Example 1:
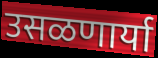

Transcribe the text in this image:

उसळणार्या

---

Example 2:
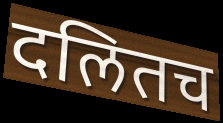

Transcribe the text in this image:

दलितच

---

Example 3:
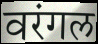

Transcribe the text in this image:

वरंगल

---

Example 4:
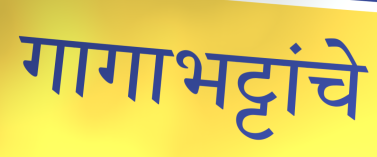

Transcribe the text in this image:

गागाभट्टांचे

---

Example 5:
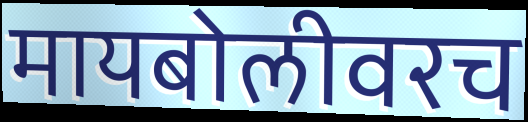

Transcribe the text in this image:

मायबोलीवरच